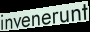
invenerunt